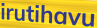
irutihavu